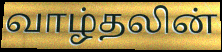
வாழ்தலின்